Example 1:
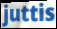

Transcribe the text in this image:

juttis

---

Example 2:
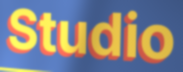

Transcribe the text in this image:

Studio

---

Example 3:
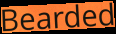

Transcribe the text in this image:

Bearded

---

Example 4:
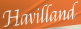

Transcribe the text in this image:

Havilland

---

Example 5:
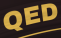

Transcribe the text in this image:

QED